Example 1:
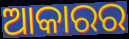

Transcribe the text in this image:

ଆକାରର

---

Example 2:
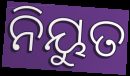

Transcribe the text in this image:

ନିୟୁତ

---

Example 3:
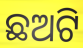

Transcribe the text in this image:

ଛଅଟି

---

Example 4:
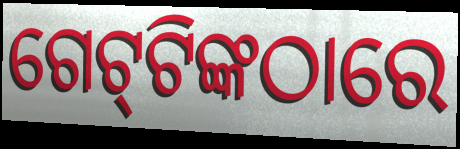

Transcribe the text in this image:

ଗେଟ୍‌ଟିଙ୍କଠାରେ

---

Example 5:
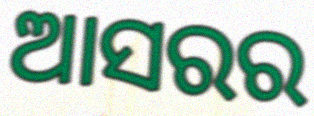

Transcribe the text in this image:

ଆସରର